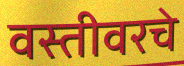
वस्तीवरचे